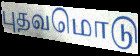
புதவமொடு